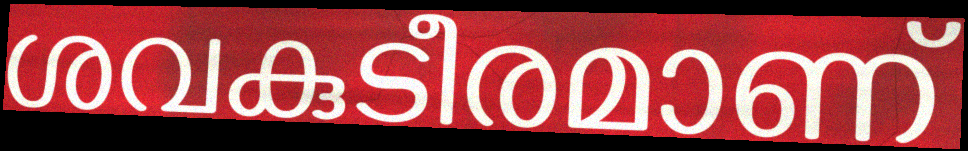
ശവകുടീരമാണ്